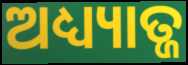
ଅଧ୍ୟ୍ୟାତ୍ଜ